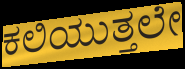
ಕಲಿಯುತ್ತಲೇ